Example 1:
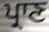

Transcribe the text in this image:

ਪ੍ਰਾਣ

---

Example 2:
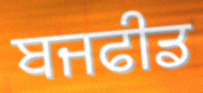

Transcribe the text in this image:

ਬਜਫੀਡ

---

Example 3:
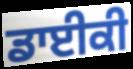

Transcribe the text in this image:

ਡਾਈਕੀ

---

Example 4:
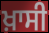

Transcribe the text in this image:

ਖ਼ਾਸੀ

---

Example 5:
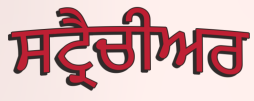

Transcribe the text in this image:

ਸਟ੍ਰੈਚੀਅਰ